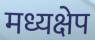
मध्यक्षेप